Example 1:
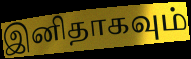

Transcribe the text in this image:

இனிதாகவும்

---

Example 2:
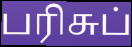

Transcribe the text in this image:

பரிசுப்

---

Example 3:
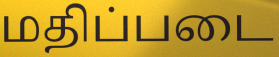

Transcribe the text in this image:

மதிப்படை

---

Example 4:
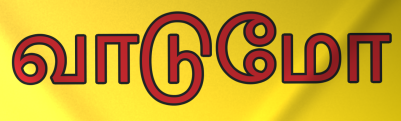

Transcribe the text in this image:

வாடுமோ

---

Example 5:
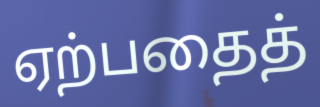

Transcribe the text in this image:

ஏற்பதைத்